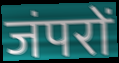
जंपरों